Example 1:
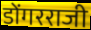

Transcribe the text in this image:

डोंगरराजी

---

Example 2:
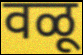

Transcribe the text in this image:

वळू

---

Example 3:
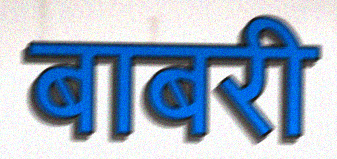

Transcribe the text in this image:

बाबरी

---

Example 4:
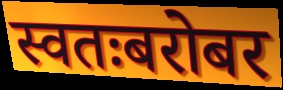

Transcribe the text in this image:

स्वतःबरोबर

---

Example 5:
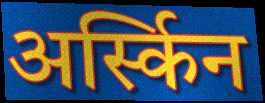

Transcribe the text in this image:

अर्स्किन